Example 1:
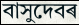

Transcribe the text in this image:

বাসুদেবৰ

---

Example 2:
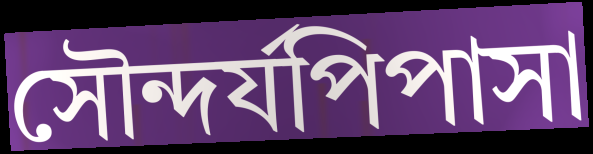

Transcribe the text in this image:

সৌন্দৰ্যপিপাসা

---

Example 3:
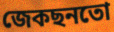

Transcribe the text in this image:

জেকছনতো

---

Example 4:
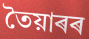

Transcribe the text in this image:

তৈয়াৰৰ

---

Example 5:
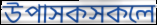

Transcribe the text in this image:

উপাসকসকলে